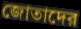
জোতাদের